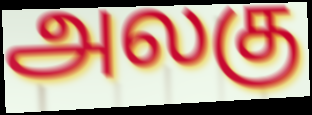
அலகு